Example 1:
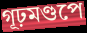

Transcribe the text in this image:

গূঢ়মণ্ডপে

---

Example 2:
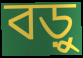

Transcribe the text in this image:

বড়ু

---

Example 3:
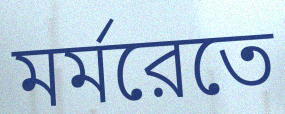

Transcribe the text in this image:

মর্মরেতে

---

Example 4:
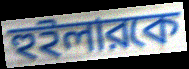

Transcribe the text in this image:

হুইলারকে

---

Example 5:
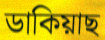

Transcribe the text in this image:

ডাকিয়াছ